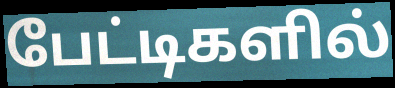
பேட்டிகளில்